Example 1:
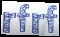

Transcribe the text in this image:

rfrf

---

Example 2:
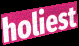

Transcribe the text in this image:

holiest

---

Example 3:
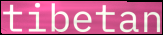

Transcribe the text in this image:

tibetan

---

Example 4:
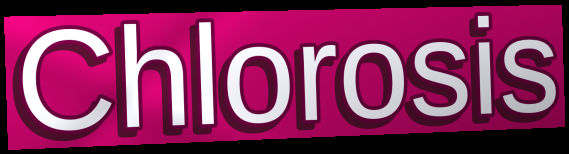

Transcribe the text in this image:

Chlorosis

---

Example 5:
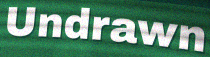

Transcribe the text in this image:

Undrawn